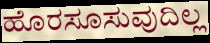
ಹೊರಸೂಸುವುದಿಲ್ಲ